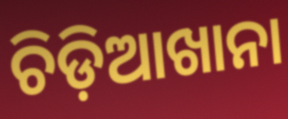
ଚିଡ଼ିଆଖାନା